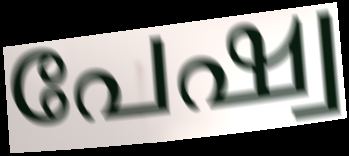
പേഷ്വ